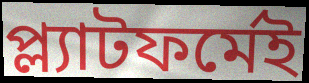
প্ল্যাটফর্মেই